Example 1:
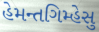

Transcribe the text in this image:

હેમન્તગિમ્હેસુ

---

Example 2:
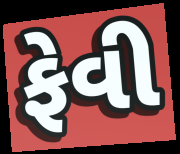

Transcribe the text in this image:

ફેવી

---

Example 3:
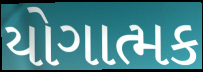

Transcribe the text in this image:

યોગાત્મક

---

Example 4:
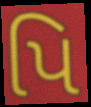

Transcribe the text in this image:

પિ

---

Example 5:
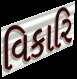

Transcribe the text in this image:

વિકારિ